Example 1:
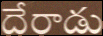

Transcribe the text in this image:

దేరాడు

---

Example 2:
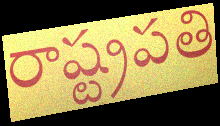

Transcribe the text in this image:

రాష్ట్రపతి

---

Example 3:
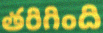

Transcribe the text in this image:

తరిగింది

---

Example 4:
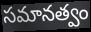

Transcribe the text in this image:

సమానత్వం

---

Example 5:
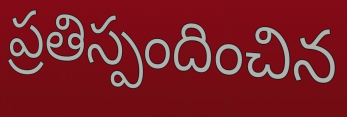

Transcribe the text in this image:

ప్రతిస్పందించిన